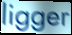
ligger